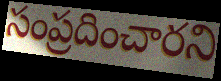
సంప్రదించారని